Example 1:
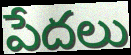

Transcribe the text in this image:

పేదలు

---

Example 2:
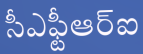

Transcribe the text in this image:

సీఎఫ్టీఆర్ఐ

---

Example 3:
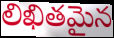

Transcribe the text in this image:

లిఖితమైన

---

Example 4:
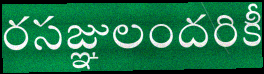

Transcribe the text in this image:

రసజ్ఞులందరికీ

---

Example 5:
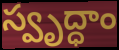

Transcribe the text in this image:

స్వృద్ధాం